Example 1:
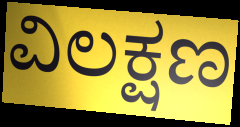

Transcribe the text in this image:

ವಿಲಕ್ಷಣ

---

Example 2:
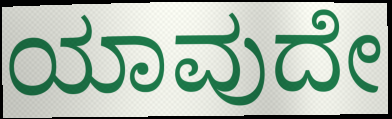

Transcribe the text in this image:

ಯಾವುದೇ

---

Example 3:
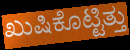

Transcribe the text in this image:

ಖುಷಿಕೊಟ್ಟಿತ್ತು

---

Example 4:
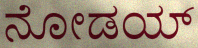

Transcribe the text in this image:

ನೋಡಯ್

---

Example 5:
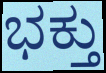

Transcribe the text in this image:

ಭಕ್ತು